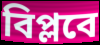
বিপ্লবে